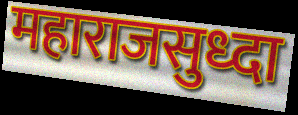
महाराजसुध्दा